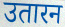
उतारन